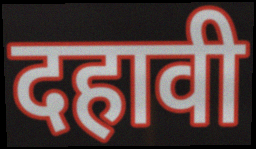
दहावी